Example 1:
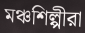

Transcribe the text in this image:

মঞ্চশিল্পীরা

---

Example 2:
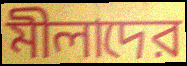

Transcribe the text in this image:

মীলাদের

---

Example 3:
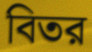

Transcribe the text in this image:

বিতর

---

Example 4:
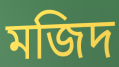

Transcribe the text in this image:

মজিদ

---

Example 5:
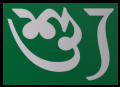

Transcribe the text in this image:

শ্যু